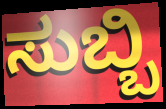
ಸುಬ್ಬಿ